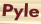
Pyle